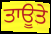
ਤਾਊਤੇ